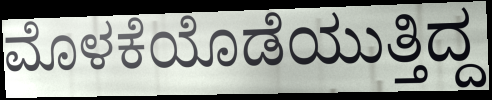
ಮೊಳಕೆಯೊಡೆಯುತ್ತಿದ್ದ